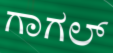
ಗಾಗಲ್